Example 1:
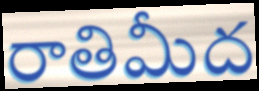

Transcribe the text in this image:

రాతిమీద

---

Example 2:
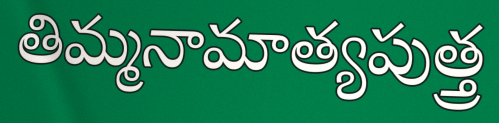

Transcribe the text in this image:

తిమ్మనామాత్యపుత్త్ర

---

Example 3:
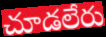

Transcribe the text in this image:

చూడలేరు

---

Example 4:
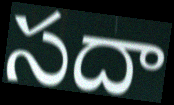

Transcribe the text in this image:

సదా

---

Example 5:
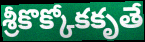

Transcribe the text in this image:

శ్రీకొక్కోకకృతే